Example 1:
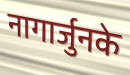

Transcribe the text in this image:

नागार्जुनके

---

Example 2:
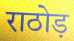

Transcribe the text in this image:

राठोड़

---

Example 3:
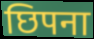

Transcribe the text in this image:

छिपना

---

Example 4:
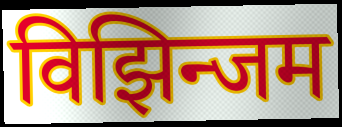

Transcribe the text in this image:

विझिन्जम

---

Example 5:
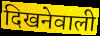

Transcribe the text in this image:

दिखनेवाली